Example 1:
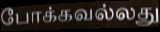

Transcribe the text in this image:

போக்கவல்லது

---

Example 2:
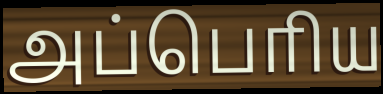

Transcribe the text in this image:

அப்பெரிய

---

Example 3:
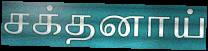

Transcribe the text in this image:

சக்தனாய்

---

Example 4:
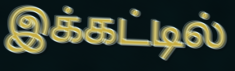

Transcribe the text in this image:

இக்கட்டில்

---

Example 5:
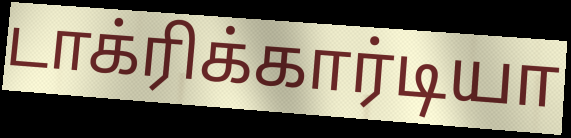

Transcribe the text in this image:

டாக்ரிக்கார்டியா